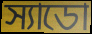
স্যাডো